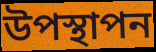
উপস্থাপন